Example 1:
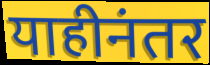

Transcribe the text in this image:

याहीनंतर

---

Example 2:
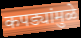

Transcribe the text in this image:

कपड्यांमुळे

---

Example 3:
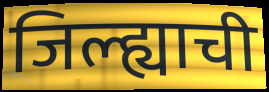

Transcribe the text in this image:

जिल्ह्याची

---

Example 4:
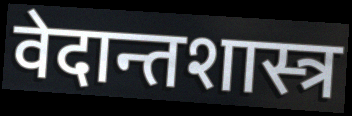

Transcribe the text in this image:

वेदान्तशास्त्र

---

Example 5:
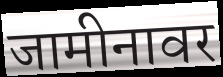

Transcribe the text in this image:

जामीनावर